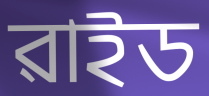
ৱাইড